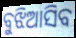
ବୁଝିଆସିବ